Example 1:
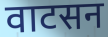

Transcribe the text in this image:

वाटसन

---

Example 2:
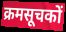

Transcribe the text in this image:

क्रमसूचकों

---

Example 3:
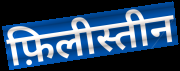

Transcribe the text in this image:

फ़िलीस्तीन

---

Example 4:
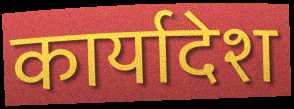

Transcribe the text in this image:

कार्यादेश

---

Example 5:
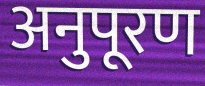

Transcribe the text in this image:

अनुपूरण